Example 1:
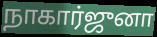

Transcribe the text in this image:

நாகார்ஜுனா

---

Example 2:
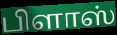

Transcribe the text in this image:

பிளாஸ்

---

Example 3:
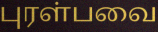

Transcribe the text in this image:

புரள்பவை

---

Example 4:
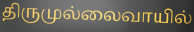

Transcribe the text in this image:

திருமுல்லைவாயில்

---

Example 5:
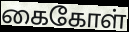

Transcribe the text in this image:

கைகோள்